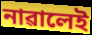
নাৱালেই